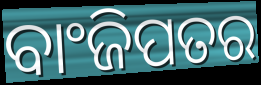
ବାଂଜିପତର